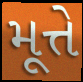
મૂત્તે